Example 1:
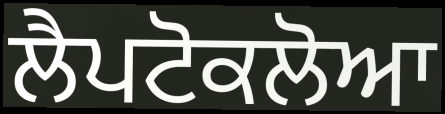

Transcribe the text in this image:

ਲੈਪਟੋਕਲੋਆ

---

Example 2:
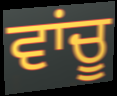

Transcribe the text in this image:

ਵਾਂਚੂ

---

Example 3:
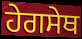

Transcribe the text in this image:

ਹੇਗਸੇਥ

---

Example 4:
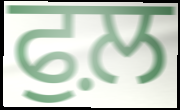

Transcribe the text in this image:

ਫੁਲ਼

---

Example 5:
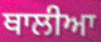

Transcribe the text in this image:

ਥਾਲੀਆ